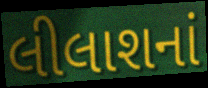
લીલાશનાં